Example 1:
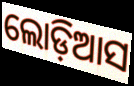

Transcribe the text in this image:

ଲୋଡ଼ିଆସ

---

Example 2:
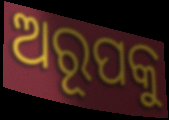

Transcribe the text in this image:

ଅରୂପକୁ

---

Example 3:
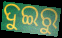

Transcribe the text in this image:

ଦୁଇରୁ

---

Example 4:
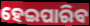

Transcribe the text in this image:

ହେଇପାରିବ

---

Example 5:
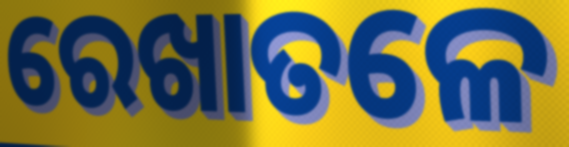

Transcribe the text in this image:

ରେଖାତଳେ